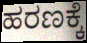
ಹರಣಕ್ಕೆ